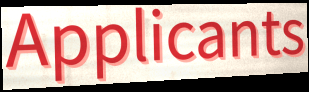
Applicants